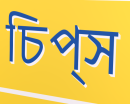
চিপ্‌স